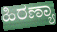
ಹಿರಣ್ಯಾ